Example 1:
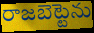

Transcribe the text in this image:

రాజబెట్టెను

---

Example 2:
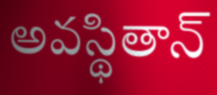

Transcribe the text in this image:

అవస్థితాన్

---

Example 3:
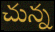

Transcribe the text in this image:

చున్న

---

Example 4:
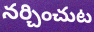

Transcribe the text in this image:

నర్చించుట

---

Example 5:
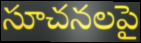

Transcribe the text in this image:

సూచనలపై